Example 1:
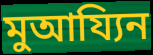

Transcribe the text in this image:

মুআয্যিন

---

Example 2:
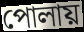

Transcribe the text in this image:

পোলায়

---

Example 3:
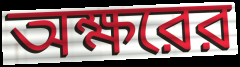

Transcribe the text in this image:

অক্ষরের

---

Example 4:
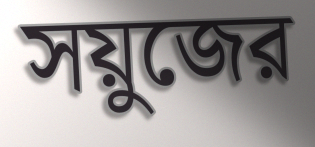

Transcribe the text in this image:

সয়ুজের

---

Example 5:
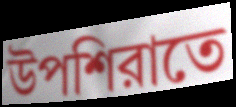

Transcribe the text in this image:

উপশিরাতে